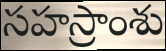
సహస్రాంశు